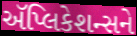
ઍપ્લિકેશન્સને